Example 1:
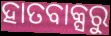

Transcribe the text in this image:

ହାତବାକ୍ସରୁ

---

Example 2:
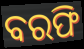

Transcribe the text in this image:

ବରଫି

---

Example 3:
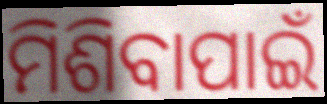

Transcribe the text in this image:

ମିଶିବାପାଇଁ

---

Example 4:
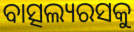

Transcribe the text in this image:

ବାତ୍ସଲ୍ୟରସକୁ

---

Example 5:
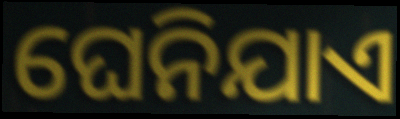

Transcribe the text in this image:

ଘେନିଯାଏ